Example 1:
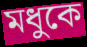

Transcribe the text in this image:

মধুকে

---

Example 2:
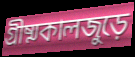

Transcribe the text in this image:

গ্রীষ্মকালজুড়ে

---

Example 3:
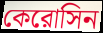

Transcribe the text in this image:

কেরোসিন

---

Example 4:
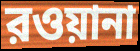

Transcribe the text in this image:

রওয়ানা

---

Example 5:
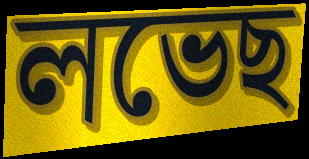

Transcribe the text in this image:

লভেছ